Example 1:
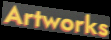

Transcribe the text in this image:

Artworks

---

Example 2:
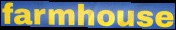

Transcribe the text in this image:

farmhouse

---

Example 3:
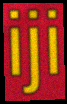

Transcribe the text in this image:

iji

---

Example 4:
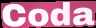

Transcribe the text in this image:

Coda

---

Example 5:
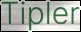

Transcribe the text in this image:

Tipler